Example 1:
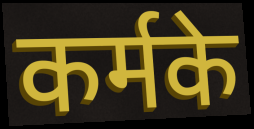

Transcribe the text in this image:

कर्मके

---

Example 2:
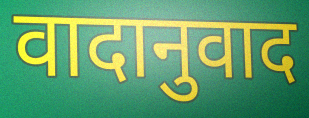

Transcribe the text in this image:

वादानुवाद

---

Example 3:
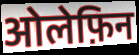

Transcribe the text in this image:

ओलेफ़िन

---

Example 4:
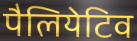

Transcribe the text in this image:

पैलियेटिव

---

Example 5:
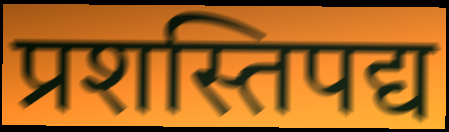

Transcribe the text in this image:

प्रशस्तिपद्य